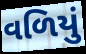
વળિયું